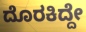
ದೊರಕಿದ್ದೇ